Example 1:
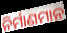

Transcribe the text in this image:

ନିର୍ମାଣମାନ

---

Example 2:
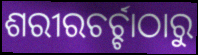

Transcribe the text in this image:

ଶରୀରଚର୍ଚ୍ଚାଠାରୁ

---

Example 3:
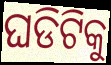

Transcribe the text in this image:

ଘଡିଟିକୁ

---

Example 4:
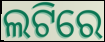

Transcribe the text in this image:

ଲଟିରେ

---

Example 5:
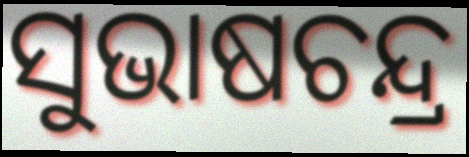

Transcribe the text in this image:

ସୁଭାଷଚନ୍ଦ୍ର